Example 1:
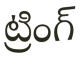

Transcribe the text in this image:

ట్రింగ్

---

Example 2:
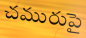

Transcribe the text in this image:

చమురుపై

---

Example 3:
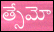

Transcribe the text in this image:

త్సేమో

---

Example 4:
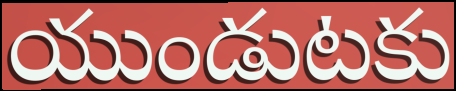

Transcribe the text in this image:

యుండుటకు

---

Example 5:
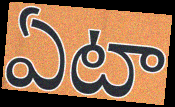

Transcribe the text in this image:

ఏటా